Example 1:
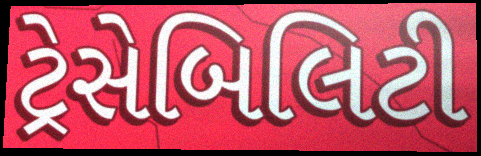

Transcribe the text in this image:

ટ્રેસેબિલિટી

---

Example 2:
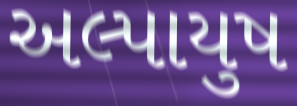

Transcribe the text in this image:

અલ્પાયુષ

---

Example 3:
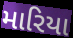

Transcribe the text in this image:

મારિયા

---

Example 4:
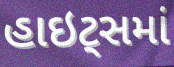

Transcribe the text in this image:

હાઇટ્સમાં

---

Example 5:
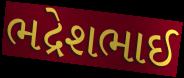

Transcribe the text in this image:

ભદ્રેશભાઈ